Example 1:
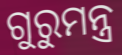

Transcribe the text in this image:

ଗୁରୁମନ୍ତ୍ର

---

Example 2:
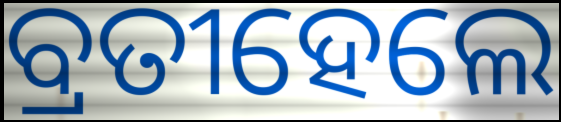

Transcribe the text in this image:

ବ୍ରତୀହେଲେ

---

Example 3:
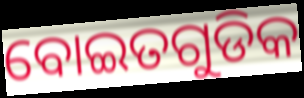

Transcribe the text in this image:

ବୋଇତଗୁଡିକ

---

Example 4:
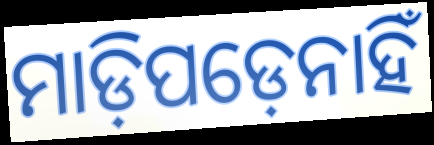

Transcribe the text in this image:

ମାଡ଼ିପଡ଼େନାହିଁ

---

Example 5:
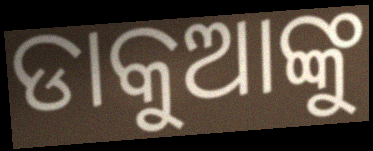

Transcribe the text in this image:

ଡାକୁଆଙ୍କୁ